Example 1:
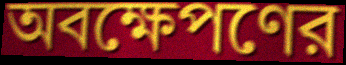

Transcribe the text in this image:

অবক্ষেপণের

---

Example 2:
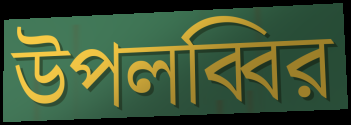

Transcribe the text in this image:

উপলব্বির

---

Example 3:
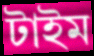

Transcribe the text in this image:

টাইম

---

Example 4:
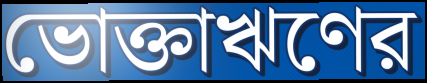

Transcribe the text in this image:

ভোক্তাঋণের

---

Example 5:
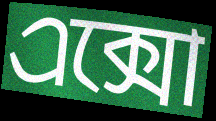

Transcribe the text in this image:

এক্সো